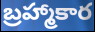
బ్రహ్మాకార